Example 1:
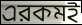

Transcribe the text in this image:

এরকমই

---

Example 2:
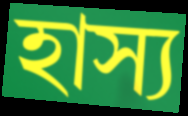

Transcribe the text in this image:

হাস্য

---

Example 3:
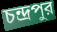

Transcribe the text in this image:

চন্দ্রপুর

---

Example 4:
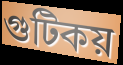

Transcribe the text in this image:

গুটিকয়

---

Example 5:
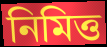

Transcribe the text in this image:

নিমিত্ত